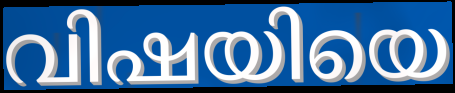
വിഷയിയെ